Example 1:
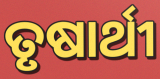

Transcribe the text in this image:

ତୃଷାର୍ଥୀ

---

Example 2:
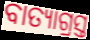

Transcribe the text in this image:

ବାତ୍ୟାଗ୍ରସ୍ତ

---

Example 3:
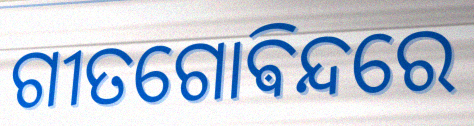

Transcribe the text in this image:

ଗୀତଗୋଵିନ୍ଦରେ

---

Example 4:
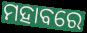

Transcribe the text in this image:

ମହାବରେ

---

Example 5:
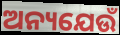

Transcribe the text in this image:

ଅନ୍ୟଯେଉଁ